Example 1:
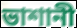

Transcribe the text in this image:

ভাশানী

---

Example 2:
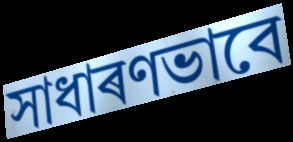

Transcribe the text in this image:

সাধাৰণভাবে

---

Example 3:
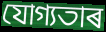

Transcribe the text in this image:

যোগ্যতাৰ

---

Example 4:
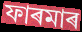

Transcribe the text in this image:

ফাৰমাৰ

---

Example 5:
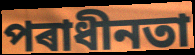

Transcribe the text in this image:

পৰাধীনতা